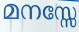
മനസ്സേ